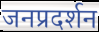
जनप्रदर्शन